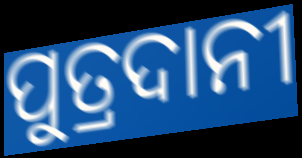
ପୁତ୍ରଦାନୀ